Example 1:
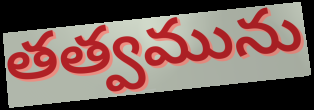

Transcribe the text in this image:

తత్వమును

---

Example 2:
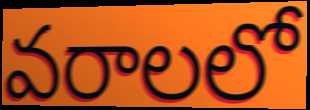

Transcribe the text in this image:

వరాలలో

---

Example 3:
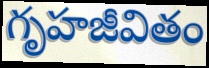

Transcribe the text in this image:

గృహజీవితం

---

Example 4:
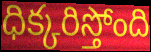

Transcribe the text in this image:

ధిక్కరిస్తోంది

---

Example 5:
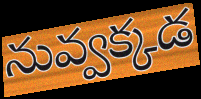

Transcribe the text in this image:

నువ్వక్కడ